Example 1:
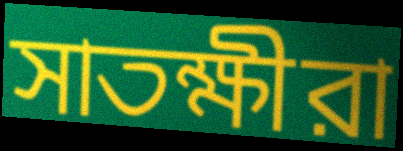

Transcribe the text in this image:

সাতক্ষীরা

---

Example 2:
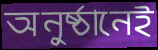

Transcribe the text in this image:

অনুষ্ঠানেই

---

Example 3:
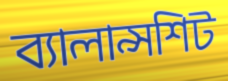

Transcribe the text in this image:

ব্যালান্সশিট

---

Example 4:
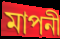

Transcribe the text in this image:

মাপনী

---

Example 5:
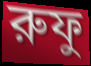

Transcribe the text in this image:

রুফু